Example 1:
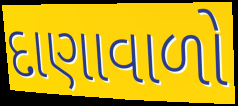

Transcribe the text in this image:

દાણાવાળો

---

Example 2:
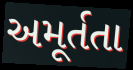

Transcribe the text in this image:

અમૂર્તતા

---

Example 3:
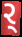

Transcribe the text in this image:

ર્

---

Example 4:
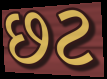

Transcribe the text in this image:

છટ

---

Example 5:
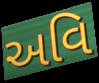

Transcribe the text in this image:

અવિ